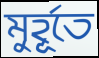
মুর্হূতে